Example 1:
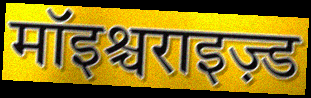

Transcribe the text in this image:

मॉइश्चराइज़्ड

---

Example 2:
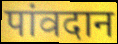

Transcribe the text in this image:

पांवदान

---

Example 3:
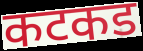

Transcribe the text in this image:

कटकड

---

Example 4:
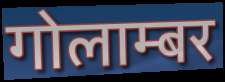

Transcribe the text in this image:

गोलाम्बर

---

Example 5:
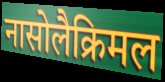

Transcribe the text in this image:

नासोलैक्रिमल